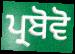
ਪ੍ਰਬੋਵੋ